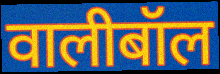
वालीबॉल